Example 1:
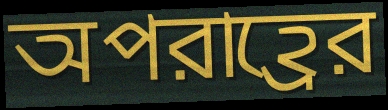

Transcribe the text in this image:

অপরাহ্রের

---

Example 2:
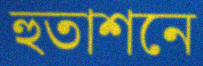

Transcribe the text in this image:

হুতাশনে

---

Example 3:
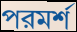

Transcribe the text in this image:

পরমর্শ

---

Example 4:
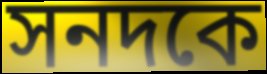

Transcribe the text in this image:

সনদকে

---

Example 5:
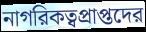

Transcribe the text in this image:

নাগরিকত্বপ্রাপ্তদের